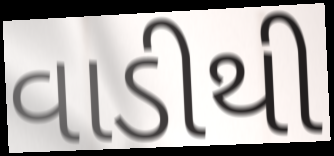
વાડીથી